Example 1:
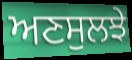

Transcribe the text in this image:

ਅਣਸੁਲਝੇ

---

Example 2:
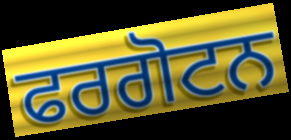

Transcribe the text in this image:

ਫਰਗੋਟਨ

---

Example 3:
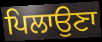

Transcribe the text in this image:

ਪਿਲਾਉਣਾ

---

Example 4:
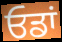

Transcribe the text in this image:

ਓਡਾਂ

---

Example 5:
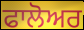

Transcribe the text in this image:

ਫਾਲੋਅਰ